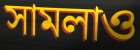
সামলাও